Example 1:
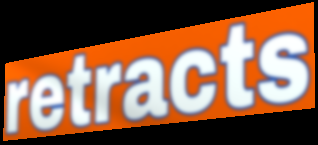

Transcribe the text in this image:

retracts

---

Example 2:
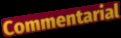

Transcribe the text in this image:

Commentarial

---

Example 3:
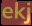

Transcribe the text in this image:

ekj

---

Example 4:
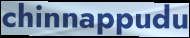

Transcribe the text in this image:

chinnappudu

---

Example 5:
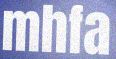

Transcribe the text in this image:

mhfa